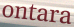
ontara